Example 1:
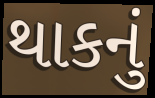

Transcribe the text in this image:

થાકનું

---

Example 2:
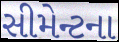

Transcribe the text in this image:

સીમેન્ટના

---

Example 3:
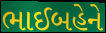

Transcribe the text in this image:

ભાઈબહેને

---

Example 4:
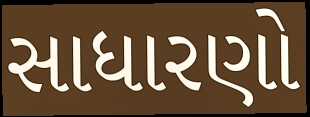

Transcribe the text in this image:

સાધારણો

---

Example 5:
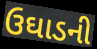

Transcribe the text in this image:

ઉઘાડની